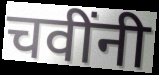
चवींनी